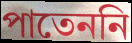
পাতেননি